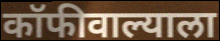
कॉफीवाल्याला